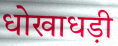
धोखाधड़ी